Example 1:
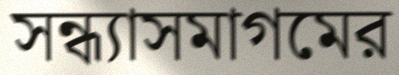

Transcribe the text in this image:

সন্ধ্যাসমাগমের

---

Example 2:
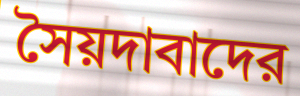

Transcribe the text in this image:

সৈয়দাবাদের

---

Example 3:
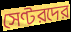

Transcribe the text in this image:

সেণ্টরদের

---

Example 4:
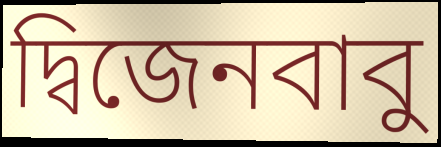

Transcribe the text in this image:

দ্বিজেনবাবু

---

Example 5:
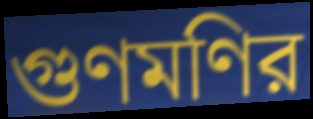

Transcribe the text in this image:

গুণমণির